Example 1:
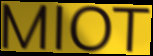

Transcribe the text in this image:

MIOT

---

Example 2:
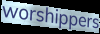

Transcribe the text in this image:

worshippers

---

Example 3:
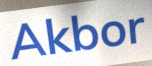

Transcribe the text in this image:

Akbor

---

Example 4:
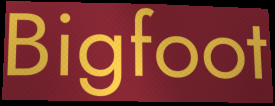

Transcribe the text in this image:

Bigfoot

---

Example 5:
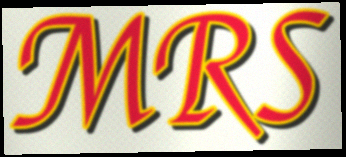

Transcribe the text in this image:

MRS